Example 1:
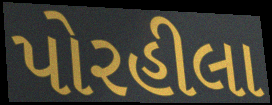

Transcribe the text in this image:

પોરહીલા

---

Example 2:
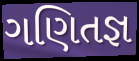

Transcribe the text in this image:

ગણિતજ્ઞ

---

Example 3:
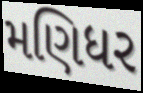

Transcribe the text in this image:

મણિધર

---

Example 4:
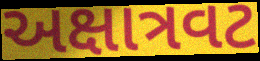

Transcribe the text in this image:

અક્ષાત્રવટ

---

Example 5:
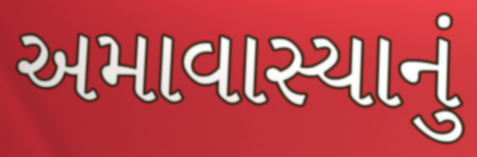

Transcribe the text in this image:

અમાવાસ્યાનું